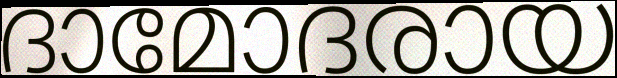
ദാമോദരായ